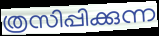
ത്രസിപ്പിക്കുന്ന